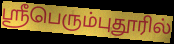
ஸ்ரீபெரும்புதூரில்